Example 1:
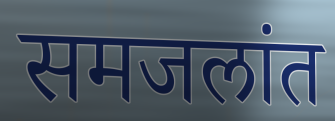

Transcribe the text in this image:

समजलांत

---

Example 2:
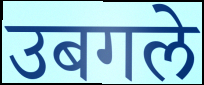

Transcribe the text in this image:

उबगले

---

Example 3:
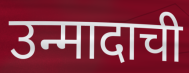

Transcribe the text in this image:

उन्मादाची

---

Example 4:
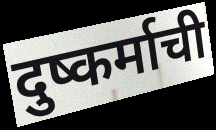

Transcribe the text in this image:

दुष्कर्माची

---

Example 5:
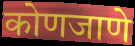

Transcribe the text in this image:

कोणजाणे